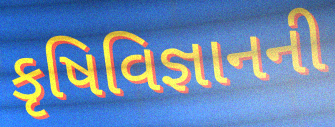
કૃષિવિજ્ઞાનની